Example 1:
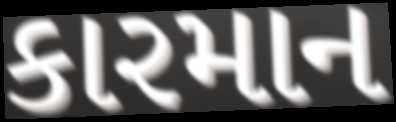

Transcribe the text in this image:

કારમાન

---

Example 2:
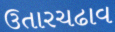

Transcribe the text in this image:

ઉતારચઢાવ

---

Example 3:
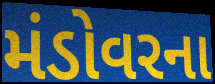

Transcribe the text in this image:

મંડોવરના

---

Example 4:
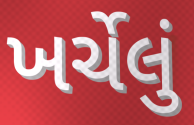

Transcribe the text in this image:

ખર્ચેલું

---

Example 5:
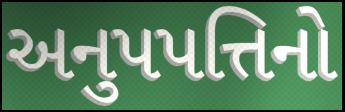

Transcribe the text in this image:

અનુપપત્તિનો